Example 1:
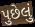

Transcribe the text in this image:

પુછેલું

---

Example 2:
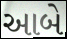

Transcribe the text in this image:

આબે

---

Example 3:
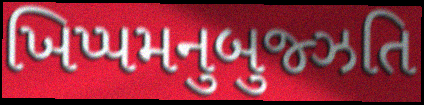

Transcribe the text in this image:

ખિપ્પમનુબુજ્ઝતિ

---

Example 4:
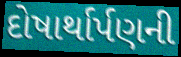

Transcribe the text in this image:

દોષાર્થાર્પણની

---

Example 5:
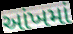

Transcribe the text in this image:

આંખમાં